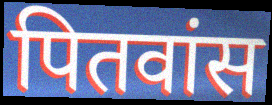
पितवांस